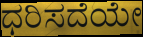
ಧರಿಸದೆಯೇ